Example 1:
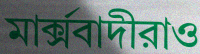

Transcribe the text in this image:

মার্ক্সবাদীরাও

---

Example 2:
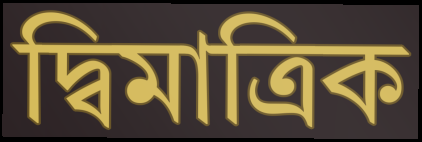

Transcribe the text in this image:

দ্বিমাত্রিক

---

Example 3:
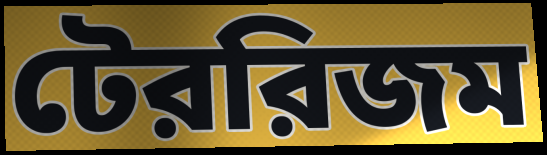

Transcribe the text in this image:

টেররিজম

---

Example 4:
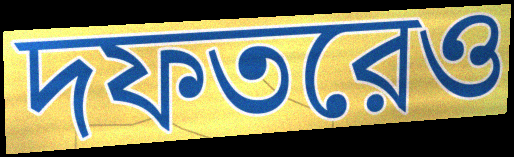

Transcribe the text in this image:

দফতরেও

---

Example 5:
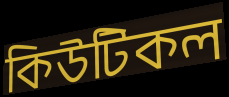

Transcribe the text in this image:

কিউটিকল